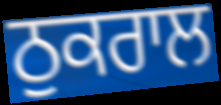
ਠੁਕਰਾਲ